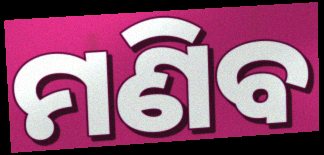
ମଣିବ